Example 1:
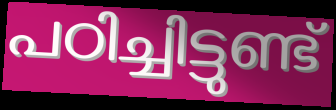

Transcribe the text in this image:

പഠിച്ചിട്ടുണ്ട്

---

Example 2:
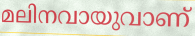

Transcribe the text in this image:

മലിനവായുവാണ്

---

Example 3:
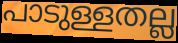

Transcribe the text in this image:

പാടുള്ളതല്ല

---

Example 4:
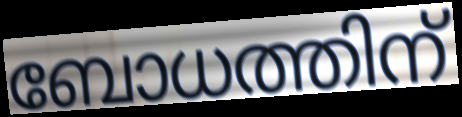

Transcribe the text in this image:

ബോധത്തിന്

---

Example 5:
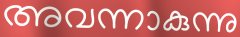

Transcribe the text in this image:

അവന്നാകുന്നു